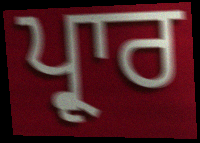
ਪ੍ਰ੍ਵਾਰ